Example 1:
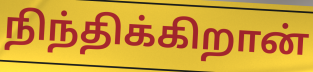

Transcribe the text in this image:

நிந்திக்கிறான்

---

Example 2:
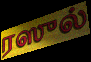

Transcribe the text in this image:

ரஸுல்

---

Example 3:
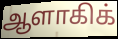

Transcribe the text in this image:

ஆளாகிக்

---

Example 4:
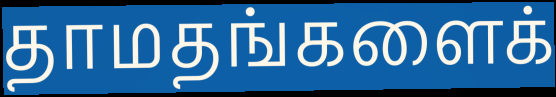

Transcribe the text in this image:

தாமதங்களைக்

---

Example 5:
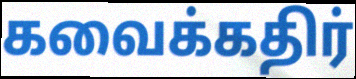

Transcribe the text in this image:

கவைக்கதிர்